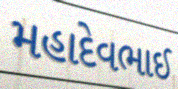
મહાદેવભાઈ